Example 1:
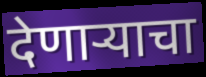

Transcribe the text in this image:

देणार्‍याचा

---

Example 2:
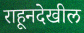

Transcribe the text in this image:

राहूनदेखील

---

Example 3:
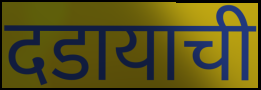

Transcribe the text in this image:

दडायाची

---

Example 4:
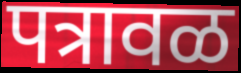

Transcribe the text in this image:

पत्रावळ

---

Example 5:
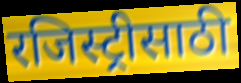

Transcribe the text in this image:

रजिस्ट्रीसाठी